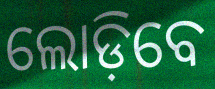
ଲୋଡ଼ିବେ